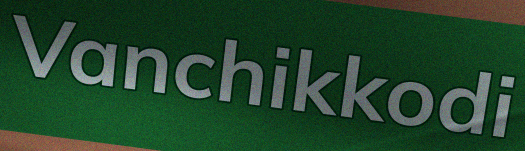
Vanchikkodi